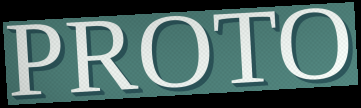
PROTO